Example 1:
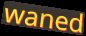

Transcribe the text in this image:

waned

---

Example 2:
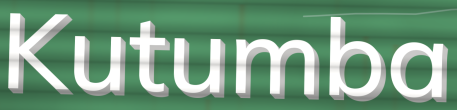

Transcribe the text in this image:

Kutumba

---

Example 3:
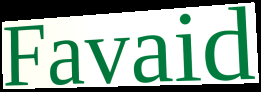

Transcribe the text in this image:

Favaid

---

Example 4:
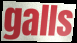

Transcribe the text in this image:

galls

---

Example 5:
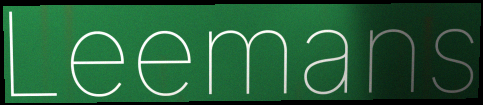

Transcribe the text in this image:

Leemans